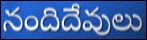
నందిదేవులు